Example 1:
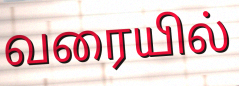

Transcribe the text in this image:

வரையில்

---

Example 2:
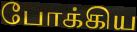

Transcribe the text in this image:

போக்கிய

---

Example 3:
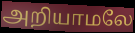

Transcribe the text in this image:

அறியாமலே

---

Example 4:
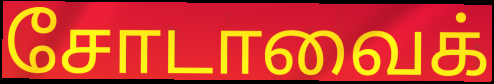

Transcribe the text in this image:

சோடாவைக்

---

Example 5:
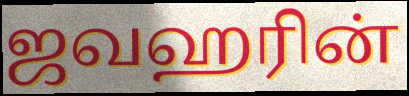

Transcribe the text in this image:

ஜவஹரின்